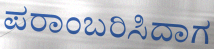
ಪರಾಂಬರಿಸಿದಾಗ